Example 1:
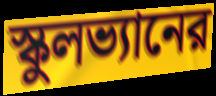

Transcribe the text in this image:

স্কুলভ্যানের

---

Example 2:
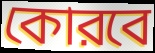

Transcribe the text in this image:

কোরবে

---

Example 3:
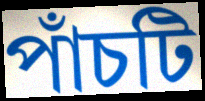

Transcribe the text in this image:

পাঁচটি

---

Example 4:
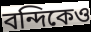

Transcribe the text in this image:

বন্দিকেও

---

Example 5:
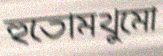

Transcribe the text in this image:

হুতোমথুমো